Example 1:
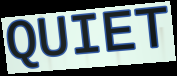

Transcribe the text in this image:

QUIET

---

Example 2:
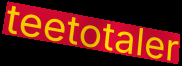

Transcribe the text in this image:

teetotaler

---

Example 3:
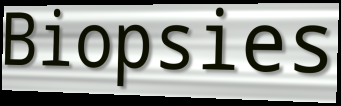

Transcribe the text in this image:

Biopsies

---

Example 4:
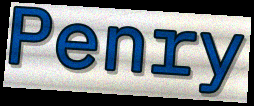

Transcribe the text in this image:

Penry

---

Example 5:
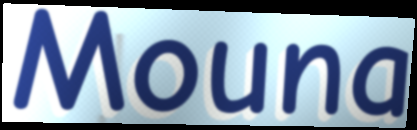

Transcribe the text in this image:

Mouna